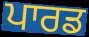
ਪਾਰਡ